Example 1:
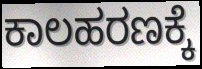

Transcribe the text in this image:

ಕಾಲಹರಣಕ್ಕೆ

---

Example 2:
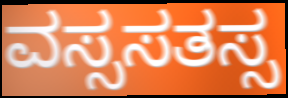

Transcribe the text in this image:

ವಸ್ಸಸತಸ್ಸ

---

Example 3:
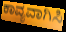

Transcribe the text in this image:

ಕಾವ್ಯವಾಗಿಸಿ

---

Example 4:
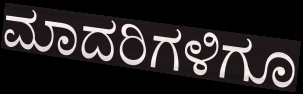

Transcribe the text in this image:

ಮಾದರಿಗಳಿಗೂ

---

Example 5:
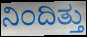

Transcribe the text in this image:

ನಿಂದಿತ್ತು